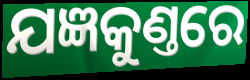
ଯଜ୍ଞକୁଣ୍ତରେ